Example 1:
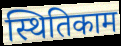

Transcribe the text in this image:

स्थितिकाम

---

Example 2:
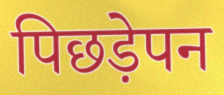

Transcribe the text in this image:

पिछड़ेपन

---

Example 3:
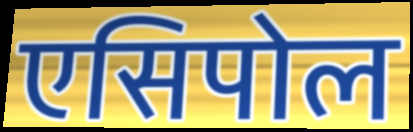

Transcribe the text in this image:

एसिपोल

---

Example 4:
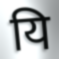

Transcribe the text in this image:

यि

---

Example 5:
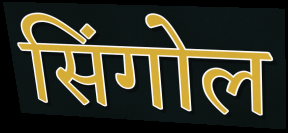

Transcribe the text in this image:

सिंगोल